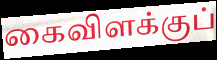
கைவிளக்குப்